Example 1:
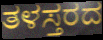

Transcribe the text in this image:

ತಳಸ್ತರದ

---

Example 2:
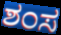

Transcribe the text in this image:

ಶಂಸ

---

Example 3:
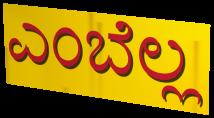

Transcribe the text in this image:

ಎಂಬೆಲ್ಲ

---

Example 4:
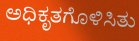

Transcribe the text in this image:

ಅಧಿಕೃತಗೊಳಿಸಿತು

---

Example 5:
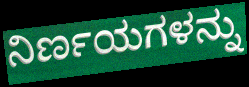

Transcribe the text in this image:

ನಿರ್ಣಯಗಳನ್ನು